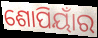
ଶୋପିୟାଁର